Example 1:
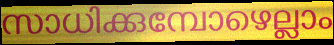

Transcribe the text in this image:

സാധിക്കുമ്പോഴെല്ലാം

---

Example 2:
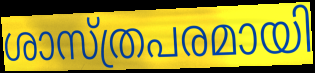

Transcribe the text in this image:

ശാസ്ത്രപരമായി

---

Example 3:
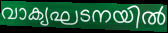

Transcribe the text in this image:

വാക്യഘടനയിൽ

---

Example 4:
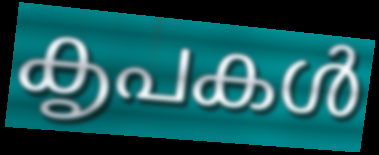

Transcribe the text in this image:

കൃപകൾ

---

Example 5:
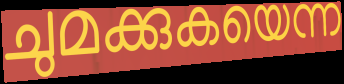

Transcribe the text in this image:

ചുമക്കുകയെന്ന